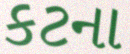
કટના